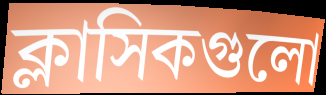
ক্লাসিকগুলো